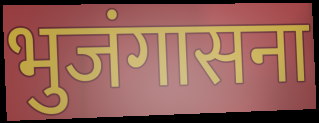
भुजंगासना